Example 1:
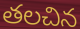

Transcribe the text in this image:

తలచిన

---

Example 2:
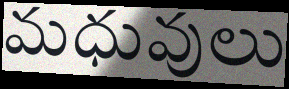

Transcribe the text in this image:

మధువులు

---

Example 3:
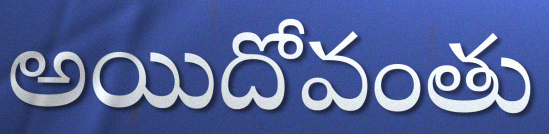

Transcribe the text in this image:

అయిదోవంతు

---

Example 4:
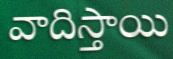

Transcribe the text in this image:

వాదిస్తాయి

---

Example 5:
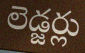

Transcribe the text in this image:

లెడ్జర్లు